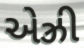
એઝ્રી